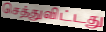
செத்துவிட்டது